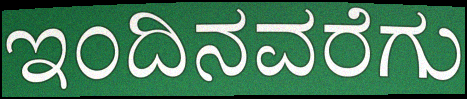
ಇಂದಿನವರೆಗು